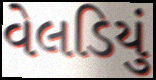
વેલડિયું